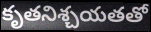
కృతనిశ్చయతతో